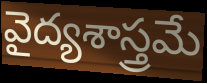
వైద్యశాస్త్రమే